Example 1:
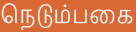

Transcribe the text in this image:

நெடும்பகை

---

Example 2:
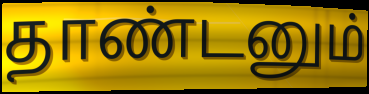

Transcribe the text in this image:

தாண்டனும்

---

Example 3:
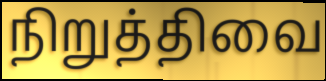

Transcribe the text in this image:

நிறுத்திவை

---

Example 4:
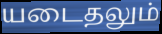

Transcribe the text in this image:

யடைதலும்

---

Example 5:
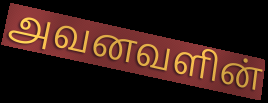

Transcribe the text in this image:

அவனவளின்